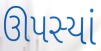
ઊપસ્યાં